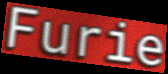
Furie